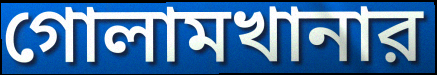
গোলামখানার